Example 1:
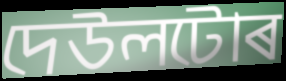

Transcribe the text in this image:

দেউলটোৰ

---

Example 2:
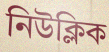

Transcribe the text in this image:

নিউক্লিক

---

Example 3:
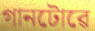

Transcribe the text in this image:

গানটোৱে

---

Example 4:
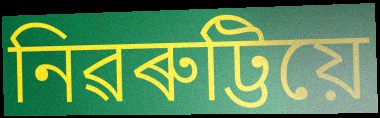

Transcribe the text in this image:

নিৱৰুট্টিয়ে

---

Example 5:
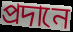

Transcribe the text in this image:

প্ৰদানে